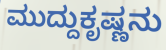
ಮುದ್ದುಕೃಷ್ಣನು